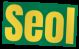
Seol